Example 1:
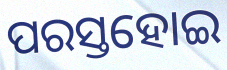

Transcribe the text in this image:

ପରସ୍ତହୋଇ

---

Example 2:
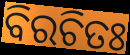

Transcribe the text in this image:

ବିରଚିତଃ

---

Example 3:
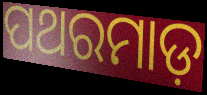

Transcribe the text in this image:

ପଥରମାଡ଼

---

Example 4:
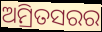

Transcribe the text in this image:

ଅମ୍ରିତସରର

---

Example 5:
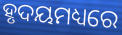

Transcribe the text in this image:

ହୃଦୟମଧ୍ୟରେ